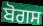
ਬੋਗਸ